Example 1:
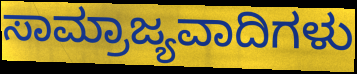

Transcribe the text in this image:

ಸಾಮ್ರಾಜ್ಯವಾದಿಗಳು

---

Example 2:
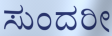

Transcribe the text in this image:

ಸುಂದರೀ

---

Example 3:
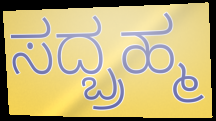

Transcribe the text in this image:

ಸದ್ಬ್ರಹ್ಮ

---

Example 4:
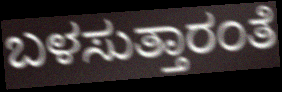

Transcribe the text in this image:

ಬಳಸುತ್ತಾರಂತೆ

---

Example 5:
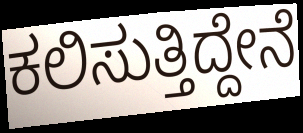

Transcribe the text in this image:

ಕಲಿಸುತ್ತಿದ್ದೇನೆ